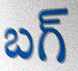
బగ్